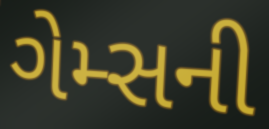
ગેમ્સની